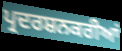
ਪ੍ਰਦਰਸ਼ਨਕਰੀਆਂ